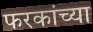
फरकांच्या